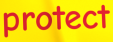
protect